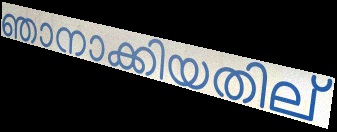
ഞാനാക്കിയതില്